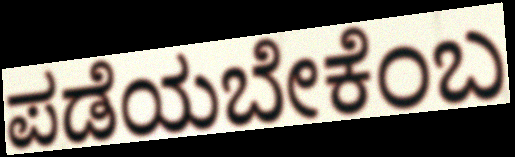
ಪಡೆಯಬೇಕೆಂಬ